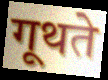
गूथते